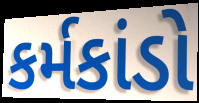
કર્મકાંડો